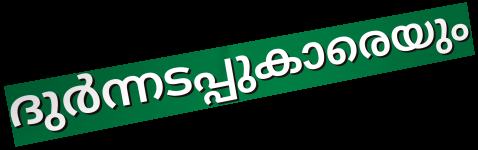
ദുർന്നടപ്പുകാരെയും